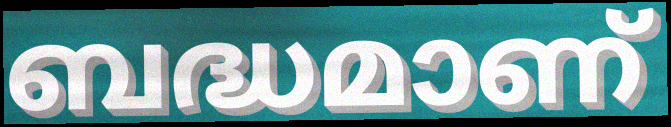
ബദ്ധമാണ്